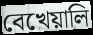
বেখেয়ালি